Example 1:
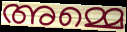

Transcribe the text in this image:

അമ്മെ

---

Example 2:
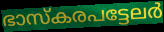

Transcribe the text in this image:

ഭാസ്കരപട്ടേലർ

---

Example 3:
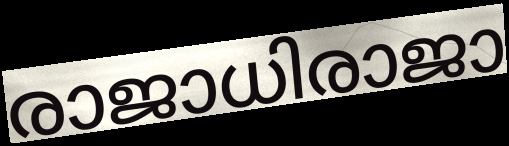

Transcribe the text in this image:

രാജാധിരാജാ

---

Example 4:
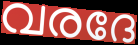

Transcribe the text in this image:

വരദേ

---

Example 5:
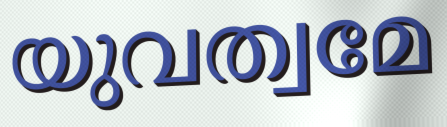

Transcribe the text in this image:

യുവത്വമേ